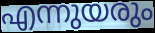
എന്നുയരും